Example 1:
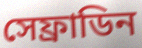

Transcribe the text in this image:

সেফ্রাডিন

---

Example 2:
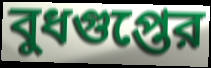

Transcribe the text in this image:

বুধগুপ্তের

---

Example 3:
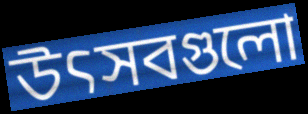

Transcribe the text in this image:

উৎসবগুলো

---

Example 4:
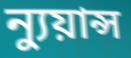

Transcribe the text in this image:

ন্যুয়ান্স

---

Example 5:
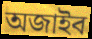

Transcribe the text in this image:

অজাইব